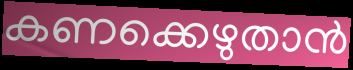
കണക്കെഴുതാൻ